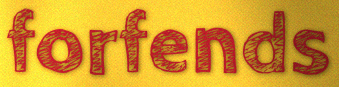
forfends